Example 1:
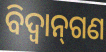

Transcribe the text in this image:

ବିଦ୍ୱାନ୍‌ଗଣ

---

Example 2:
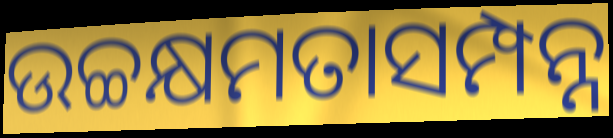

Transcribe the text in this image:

ଉଚ୍ଚକ୍ଷମତାସମ୍ପନ୍ନ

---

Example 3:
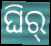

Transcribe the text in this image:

ଘିର୍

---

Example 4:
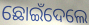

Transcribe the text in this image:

ଛୋଇଁଦେଲେ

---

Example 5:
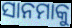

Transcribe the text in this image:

ସାନମାକୁ